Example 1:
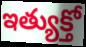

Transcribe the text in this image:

ఇత్యుక్తో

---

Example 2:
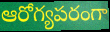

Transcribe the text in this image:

ఆరోగ్యపరంగా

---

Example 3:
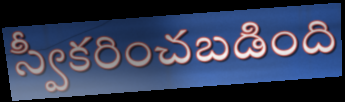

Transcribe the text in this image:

స్వీకరించబడింది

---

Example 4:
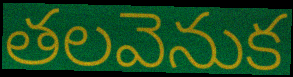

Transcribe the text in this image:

తలవెనుక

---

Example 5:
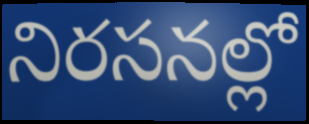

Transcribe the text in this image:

నిరసనల్లో